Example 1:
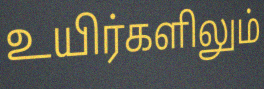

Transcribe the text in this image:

உயிர்களிலும்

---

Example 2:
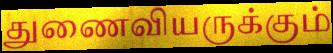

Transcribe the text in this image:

துணைவியருக்கும்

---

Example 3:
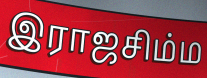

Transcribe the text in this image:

இராஜசிம்ம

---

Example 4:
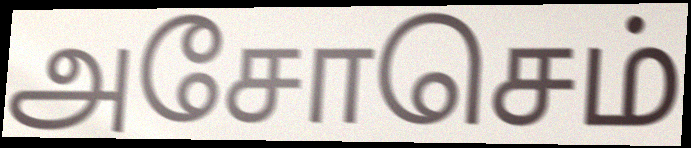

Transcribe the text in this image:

அசோசெம்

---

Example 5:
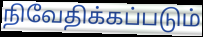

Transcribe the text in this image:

நிவேதிக்கப்படும்